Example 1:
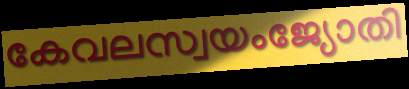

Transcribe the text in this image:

കേവലസ്വയംജ്യോതി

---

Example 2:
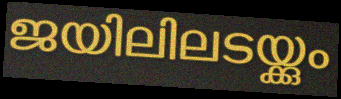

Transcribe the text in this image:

ജയിലിലടയ്ക്കും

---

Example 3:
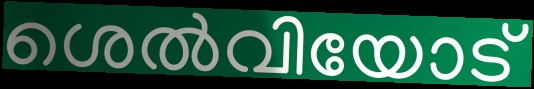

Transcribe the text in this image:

ശെൽവിയോട്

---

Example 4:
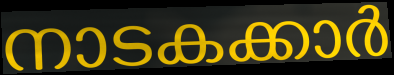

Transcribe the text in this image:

നാടകക്കാർ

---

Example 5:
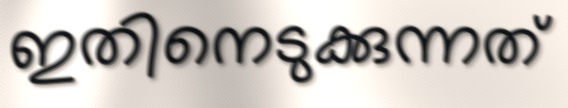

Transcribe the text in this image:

ഇതിനെടുക്കുന്നത്